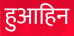
हुआहिन